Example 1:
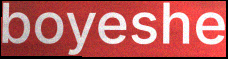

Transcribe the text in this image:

boyeshe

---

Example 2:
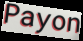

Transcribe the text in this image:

Payon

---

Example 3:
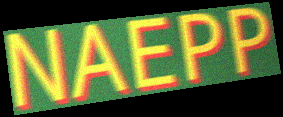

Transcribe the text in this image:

NAEPP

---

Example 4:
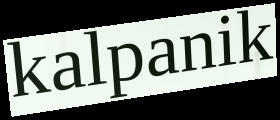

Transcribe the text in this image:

kalpanik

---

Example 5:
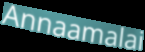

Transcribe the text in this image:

Annaamalai